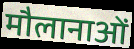
मौलानाओं